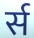
र्स